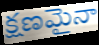
క్షణమైనా